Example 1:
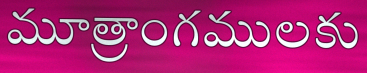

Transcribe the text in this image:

మూత్రాంగములకు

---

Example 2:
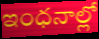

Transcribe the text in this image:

ఇంధనాల్లో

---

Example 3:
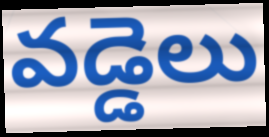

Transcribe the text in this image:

వడ్డెలు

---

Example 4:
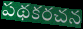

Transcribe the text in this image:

పథకరచన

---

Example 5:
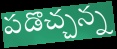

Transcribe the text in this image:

పడొచ్చన్న